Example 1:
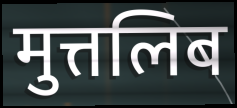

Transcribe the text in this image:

मुत्तलिब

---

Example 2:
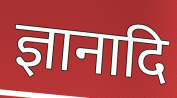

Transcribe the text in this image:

ज्ञानादि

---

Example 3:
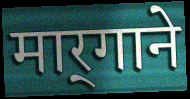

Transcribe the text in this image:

मार्गाने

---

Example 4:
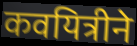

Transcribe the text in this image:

कवयित्रीने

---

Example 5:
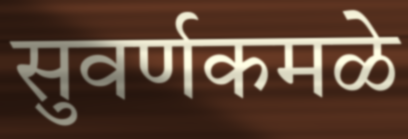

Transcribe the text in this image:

सुवर्णकमळे